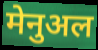
मेनुअल